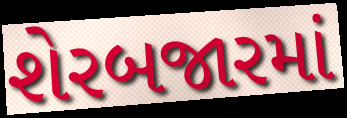
શેરબજારમાં